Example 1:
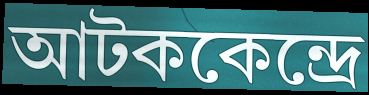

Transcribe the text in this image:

আটককেন্দ্রে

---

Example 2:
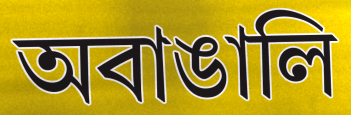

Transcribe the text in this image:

অবাঙালি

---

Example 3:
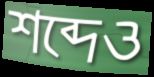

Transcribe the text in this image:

শব্দেও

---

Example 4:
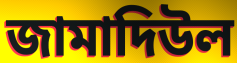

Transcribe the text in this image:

জামাদিউল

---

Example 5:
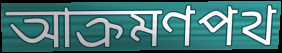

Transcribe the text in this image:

আক্রমণপথ